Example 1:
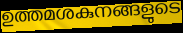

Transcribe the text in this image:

ഉത്തമശകുനങ്ങളുടെ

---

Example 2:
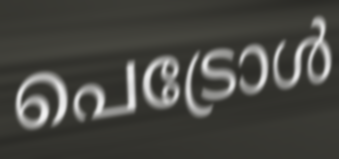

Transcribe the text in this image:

പെട്രോൾ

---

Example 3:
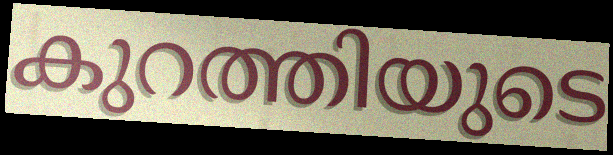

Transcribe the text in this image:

കുറത്തിയുടെ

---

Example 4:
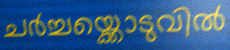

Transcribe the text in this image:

ചർച്ചയ്ക്കൊടുവിൽ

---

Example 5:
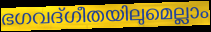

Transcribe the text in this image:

ഭഗവദ്ഗീതയിലുമെല്ലാം